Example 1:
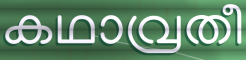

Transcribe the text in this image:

കഥാവ്രതീ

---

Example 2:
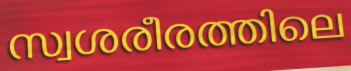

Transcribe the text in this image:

സ്വശരീരത്തിലെ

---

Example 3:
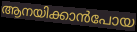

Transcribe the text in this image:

ആനയിക്കാൻപോയ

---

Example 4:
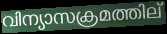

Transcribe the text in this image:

വിന്യാസക്രമത്തില്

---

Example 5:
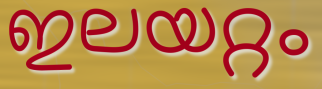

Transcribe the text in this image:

ഇലയറ്റം